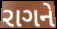
રાગને